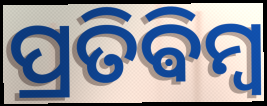
ପ୍ରତିଵିମ୍ବ